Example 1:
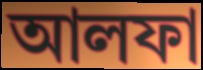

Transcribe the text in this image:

আলফা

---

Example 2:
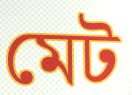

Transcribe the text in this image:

মেট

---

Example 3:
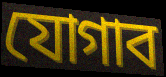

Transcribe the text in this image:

যোগাব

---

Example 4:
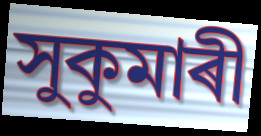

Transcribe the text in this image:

সুকুমাৰী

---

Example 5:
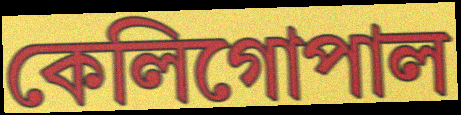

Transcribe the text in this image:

কেলিগোপাল